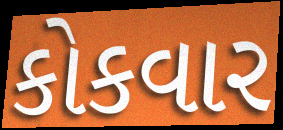
કોકવાર